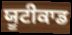
ਯੂਟੀਕਾਡ